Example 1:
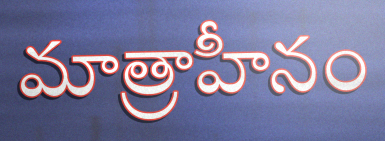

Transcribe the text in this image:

మాత్రాహీనం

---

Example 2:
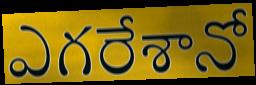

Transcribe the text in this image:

ఎగరేశానో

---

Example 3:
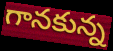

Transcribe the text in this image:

గానకున్న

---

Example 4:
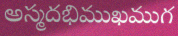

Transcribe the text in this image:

అస్మదభిముఖముగ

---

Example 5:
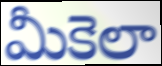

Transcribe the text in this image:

మీకెలా